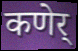
कणेर्